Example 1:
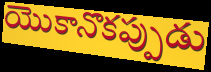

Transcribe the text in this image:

యొకానొకప్పుడు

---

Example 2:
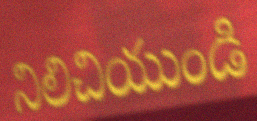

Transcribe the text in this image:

నిలిచియుండి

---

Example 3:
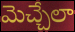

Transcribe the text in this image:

మెచ్చేలా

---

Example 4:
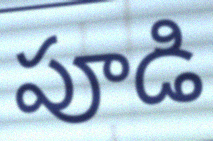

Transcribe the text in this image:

పూడి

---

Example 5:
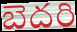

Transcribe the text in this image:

బెదరి